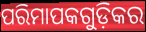
ପରିମାପକଗୁଡ଼ିକର